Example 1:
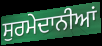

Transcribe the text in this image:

ਸੁਰਮੇਦਾਨੀਆਂ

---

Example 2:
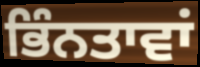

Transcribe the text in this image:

ਭਿੰਨਤਾਵਾਂ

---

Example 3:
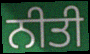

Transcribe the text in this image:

ਨੀਤੀ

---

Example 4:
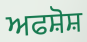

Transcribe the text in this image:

ਅਫਸ਼ੋਸ਼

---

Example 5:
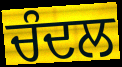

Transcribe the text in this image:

ਚੰਦਲ